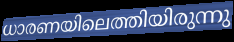
ധാരണയിലെത്തിയിരുന്നു